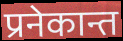
प्रनेकान्त